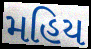
મહિય